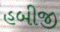
હબીજી